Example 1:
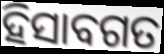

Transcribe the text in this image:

ହିସାବଗତ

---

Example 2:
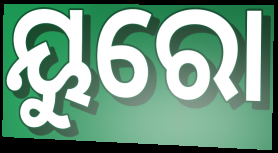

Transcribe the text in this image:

ୟୁରୋ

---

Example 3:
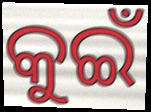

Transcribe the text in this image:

କୁଇଁ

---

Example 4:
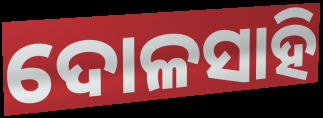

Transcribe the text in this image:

ଦୋଳସାହି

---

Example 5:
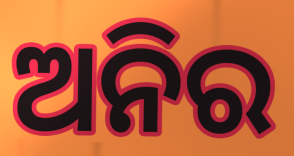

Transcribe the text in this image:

ଅନିର